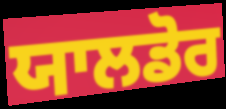
ਯਾਲਡੋਰ